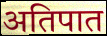
अतिपात